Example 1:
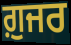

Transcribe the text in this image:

ਗ਼ੁਜਰ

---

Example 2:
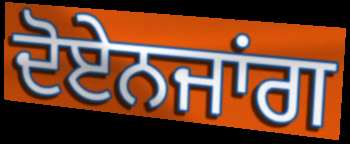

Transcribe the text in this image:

ਦੋਏਨਜਾਂਗ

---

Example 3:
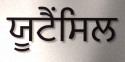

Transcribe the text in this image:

ਯੂਟੈਂਸਿਲ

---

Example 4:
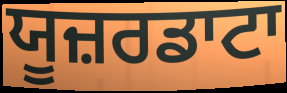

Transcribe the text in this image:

ਯੂਜ਼ਰਡਾਟਾ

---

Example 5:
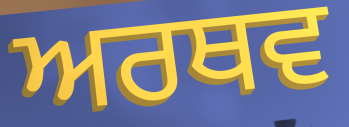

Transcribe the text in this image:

ਅਰਥਵ